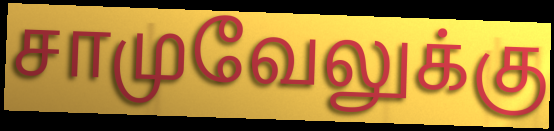
சாமுவேலுக்கு